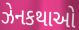
ઝેનકથાઓ